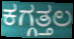
ಕಗ್ಗತ್ತಲ